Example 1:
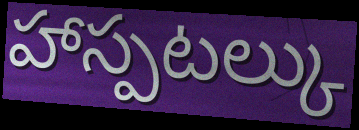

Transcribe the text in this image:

హాస్పటల్కు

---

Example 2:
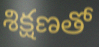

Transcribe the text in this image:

శిక్షణతో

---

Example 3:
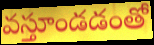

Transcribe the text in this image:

వస్తూండడంతో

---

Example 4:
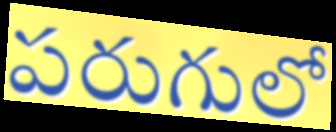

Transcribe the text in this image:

పరుగులో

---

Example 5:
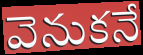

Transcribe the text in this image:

వెనుకనే